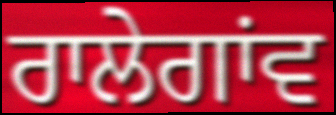
ਰਾਲੇਗਾਂਵ